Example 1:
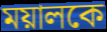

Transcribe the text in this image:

ময়ালকে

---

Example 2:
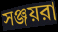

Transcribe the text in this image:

সঞ্জয়রা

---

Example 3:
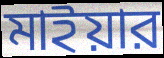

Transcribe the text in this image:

মাইয়ার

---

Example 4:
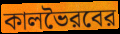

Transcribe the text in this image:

কালভৈরবের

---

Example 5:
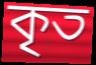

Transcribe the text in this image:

কৃত